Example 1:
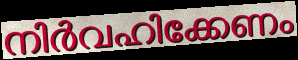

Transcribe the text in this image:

നിർവഹിക്കേണം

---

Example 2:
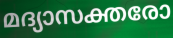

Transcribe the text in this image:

മദ്യാസക്തരോ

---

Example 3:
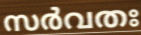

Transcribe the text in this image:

സർവതഃ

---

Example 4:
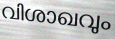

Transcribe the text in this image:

വിശാഖവും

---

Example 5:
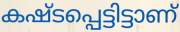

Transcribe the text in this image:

കഷ്ടപ്പെട്ടിട്ടാണ്